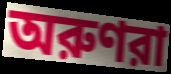
অরুণরা